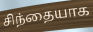
சிந்தையாக